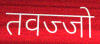
तवज्जो